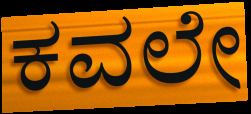
ಕವಲೇ